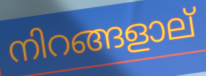
നിറങ്ങളാല്